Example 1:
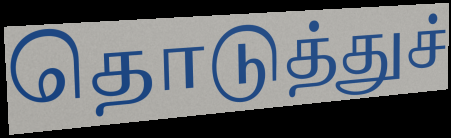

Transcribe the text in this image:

தொடுத்துச்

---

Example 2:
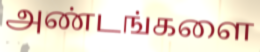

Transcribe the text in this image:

அண்டங்களை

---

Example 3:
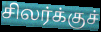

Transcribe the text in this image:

சிலர்க்குச்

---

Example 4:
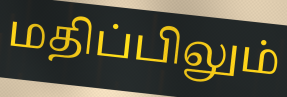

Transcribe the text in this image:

மதிப்பிலும்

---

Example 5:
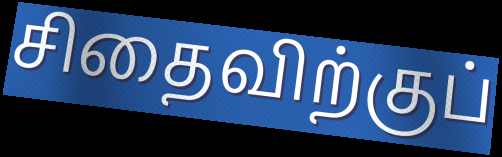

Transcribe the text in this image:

சிதைவிற்குப்